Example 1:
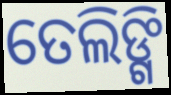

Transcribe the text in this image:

ତେଲିଙ୍ଗି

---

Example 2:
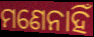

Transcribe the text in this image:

ମଣେନାହିଁ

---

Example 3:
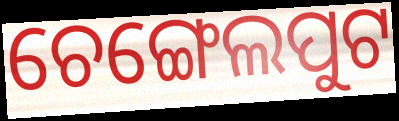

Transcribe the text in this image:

ଚେଙ୍ଗେଲପୁଟ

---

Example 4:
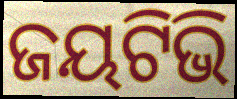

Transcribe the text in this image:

ଜୟଟିଭି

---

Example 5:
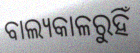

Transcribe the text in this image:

ବାଲ୍ୟକାଳରୁହିଁ